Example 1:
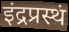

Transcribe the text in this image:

इंद्रप्रस्थं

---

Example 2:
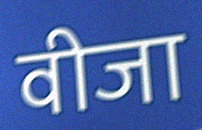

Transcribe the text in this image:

वीजा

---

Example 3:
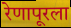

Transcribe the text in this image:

रेणापूरला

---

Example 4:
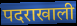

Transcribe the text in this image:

पदराखाली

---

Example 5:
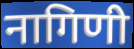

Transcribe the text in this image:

नागिणी